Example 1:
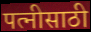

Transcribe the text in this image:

पत्नीसाठी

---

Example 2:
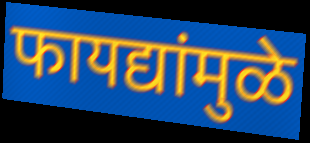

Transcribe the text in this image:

फायद्यांमुळे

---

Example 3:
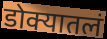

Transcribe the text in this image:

डोक्यातलं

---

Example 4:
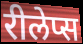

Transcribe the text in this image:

रीलेप्स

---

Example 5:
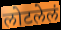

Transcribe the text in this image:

लोटलेलं